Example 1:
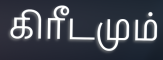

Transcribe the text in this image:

கிரீடமும்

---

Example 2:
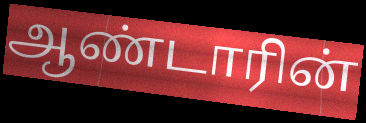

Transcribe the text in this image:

ஆண்டாரின்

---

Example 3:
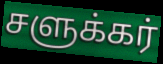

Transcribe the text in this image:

சளுக்கர்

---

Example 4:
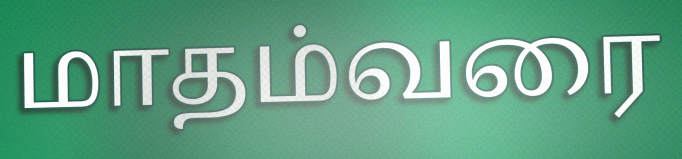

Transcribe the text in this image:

மாதம்வரை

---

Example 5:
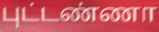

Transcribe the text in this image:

புட்டண்ணா